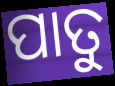
ପାତୁ